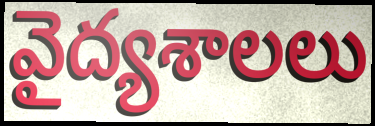
వైద్యశాలలు